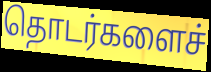
தொடர்களைச்